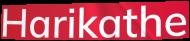
Harikathe